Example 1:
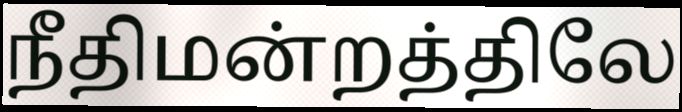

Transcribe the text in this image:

நீதிமன்றத்திலே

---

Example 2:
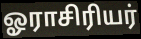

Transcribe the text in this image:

ஓராசிரியர்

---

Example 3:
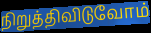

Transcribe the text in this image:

நிறுத்திவிடுவோம்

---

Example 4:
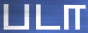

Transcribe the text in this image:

படா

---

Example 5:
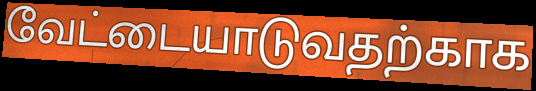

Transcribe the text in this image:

வேட்டையாடுவதற்காக